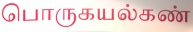
பொருகயல்கண்